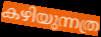
കഴിയുന്നത്ര